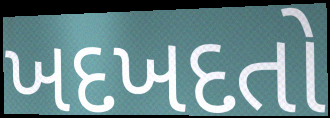
ખદખદતો